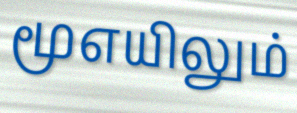
மூஎயிலும்